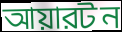
আয়ারটন